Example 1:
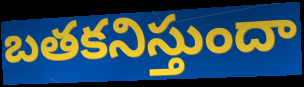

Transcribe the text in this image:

బతకనిస్తుందా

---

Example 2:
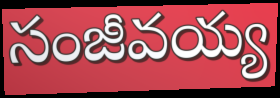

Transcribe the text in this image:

సంజీవయ్య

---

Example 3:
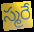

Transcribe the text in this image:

స్మరే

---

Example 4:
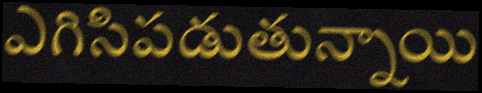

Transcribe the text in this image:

ఎగిసిపడుతున్నాయి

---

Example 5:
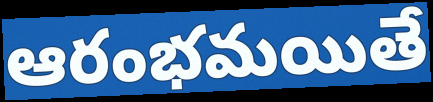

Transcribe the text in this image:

ఆరంభమయితే